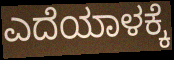
ಎದೆಯಾಳಕ್ಕೆ